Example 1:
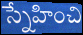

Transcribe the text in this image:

స్నేహించి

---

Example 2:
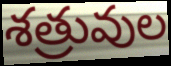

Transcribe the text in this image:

శత్రువుల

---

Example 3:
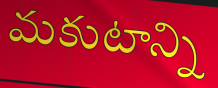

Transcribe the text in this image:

మకుటాన్ని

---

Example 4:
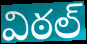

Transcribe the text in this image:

విఠల్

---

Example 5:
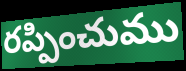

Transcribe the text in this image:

రప్పించుము